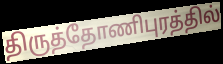
திருத்தோணிபுரத்தில்